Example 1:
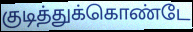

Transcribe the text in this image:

குடித்துக்கொண்டே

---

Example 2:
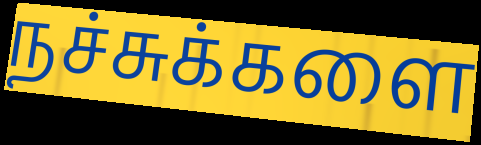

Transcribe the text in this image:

நச்சுக்களை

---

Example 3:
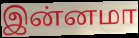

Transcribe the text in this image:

இன்னமா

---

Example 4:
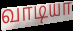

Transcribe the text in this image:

வாடியா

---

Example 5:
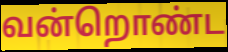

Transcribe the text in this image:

வன்றொண்ட